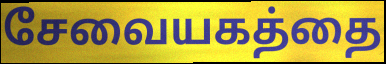
சேவையகத்தை